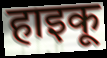
हाइकू